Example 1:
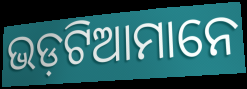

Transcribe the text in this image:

ଭଡ଼ଟିଆମାନେ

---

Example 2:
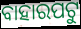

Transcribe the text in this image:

ବାହାରପଟୁ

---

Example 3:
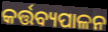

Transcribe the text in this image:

କର୍ତ୍ତବ୍ୟପାଳନ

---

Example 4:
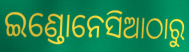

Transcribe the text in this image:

ଇଣ୍ଡୋନେସିଆଠାରୁ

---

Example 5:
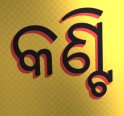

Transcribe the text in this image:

କଣ୍ଟି